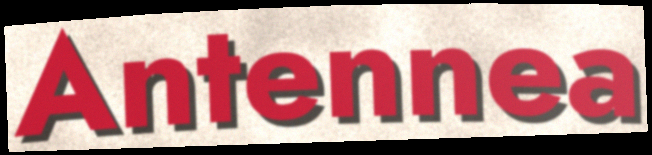
Antennea